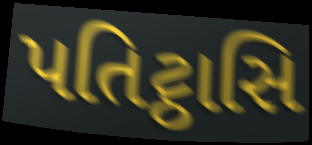
પતિટ્ઠાસિ